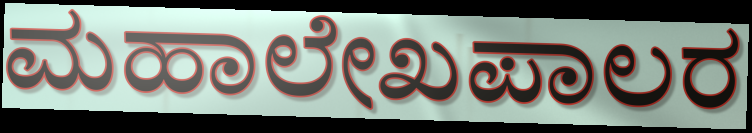
ಮಹಾಲೇಖಪಾಲರ